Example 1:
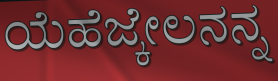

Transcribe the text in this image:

ಯೆಹೆಜ್ಕೇಲನನ್ನ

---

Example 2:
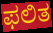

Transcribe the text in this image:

ಫಲಿತ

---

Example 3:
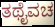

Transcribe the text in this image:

ತಥೈವಚ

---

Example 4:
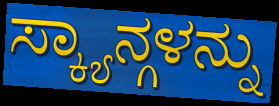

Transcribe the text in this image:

ಸ್ಕ್ಯಾನ್ಗಳನ್ನು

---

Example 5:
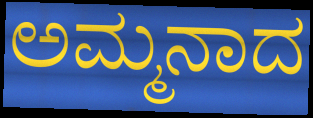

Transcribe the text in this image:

ಅಮ್ಮನಾದ